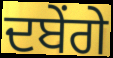
ਦਬੇਂਗੇ